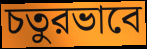
চতুরভাবে